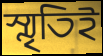
স্মৃতিই